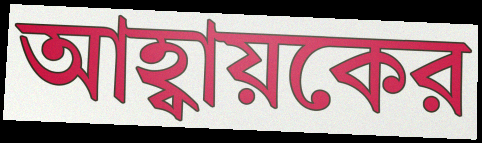
আহ্বায়কের